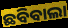
ଛବିବାଲା